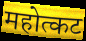
महोत्कट